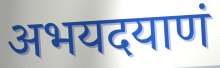
अभयदयाणं